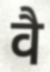
वै